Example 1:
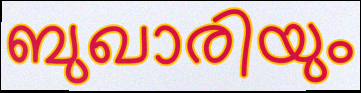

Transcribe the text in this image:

ബുഖാരിയും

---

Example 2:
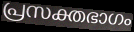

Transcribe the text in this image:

പ്രസക്തഭാഗം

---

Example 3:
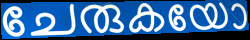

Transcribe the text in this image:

ചേരുകയോ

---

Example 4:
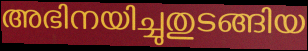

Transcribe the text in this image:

അഭിനയിച്ചുതുടങ്ങിയ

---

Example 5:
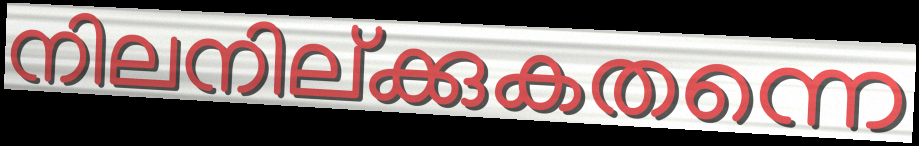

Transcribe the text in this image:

നിലനില്ക്കുകതന്നെ